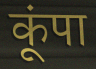
कूंपा